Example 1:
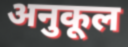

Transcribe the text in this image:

अनुकूल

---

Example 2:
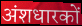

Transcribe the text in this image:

अंशधारकों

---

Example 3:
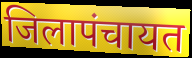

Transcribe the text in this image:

जिलापंचायत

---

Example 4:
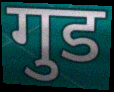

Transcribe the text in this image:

गुड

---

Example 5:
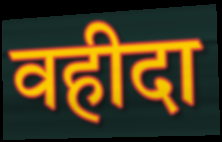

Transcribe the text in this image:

वहीदा